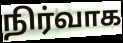
நிர்வாக